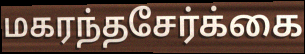
மகரந்தசேர்க்கை